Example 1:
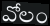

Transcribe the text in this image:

వోలం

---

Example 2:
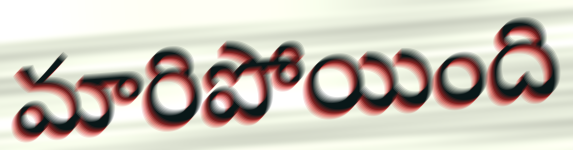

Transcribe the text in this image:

మారిపోయింది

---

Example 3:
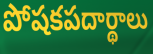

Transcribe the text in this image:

పోషకపదార్థాలు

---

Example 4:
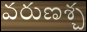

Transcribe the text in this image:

వరుణశ్చ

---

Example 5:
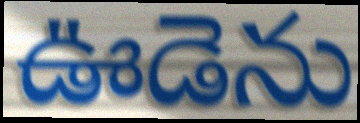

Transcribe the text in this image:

ఊడెను